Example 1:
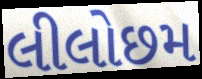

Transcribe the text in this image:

લીલોછમ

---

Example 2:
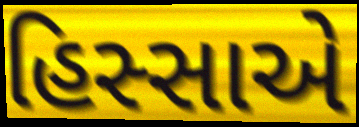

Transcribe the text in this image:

હિસ્સાએ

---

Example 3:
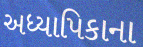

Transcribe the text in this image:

અધ્યાપિકાના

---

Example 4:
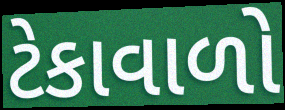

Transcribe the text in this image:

ટેકાવાળો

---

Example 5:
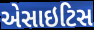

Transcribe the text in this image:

એસાઇટિસ